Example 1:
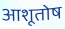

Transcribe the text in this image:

आशूतोष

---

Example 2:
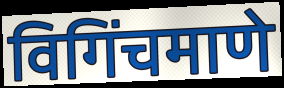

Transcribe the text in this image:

विगिंचमाणे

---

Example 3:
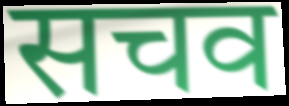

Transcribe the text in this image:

सचव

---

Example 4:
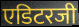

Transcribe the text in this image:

एडिटरजी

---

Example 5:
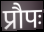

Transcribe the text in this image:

प्रौपः